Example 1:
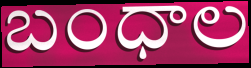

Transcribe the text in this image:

బంధాల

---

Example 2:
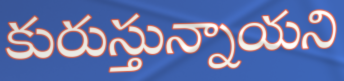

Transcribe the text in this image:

కురుస్తున్నాయని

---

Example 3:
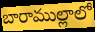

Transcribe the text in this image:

బారాముల్లాలో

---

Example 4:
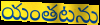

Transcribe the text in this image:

యంతటను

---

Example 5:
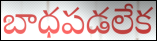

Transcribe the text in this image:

బాధపడలేక